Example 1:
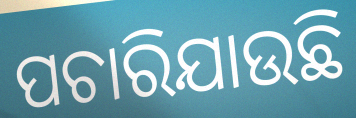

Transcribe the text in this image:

ପଚାରିଯାଉଛି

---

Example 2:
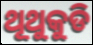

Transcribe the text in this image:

ଥୂଥୁକୁଡି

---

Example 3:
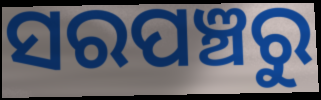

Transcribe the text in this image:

ସରପଞ୍ଚରୁ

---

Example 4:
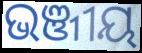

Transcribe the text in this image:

ଭଞ୍ଜୀୟ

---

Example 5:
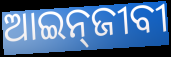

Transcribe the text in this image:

ଆଇନ୍‌ଜୀବୀ